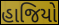
હાજિયો